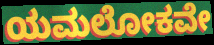
ಯಮಲೋಕವೇ